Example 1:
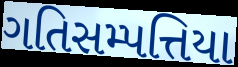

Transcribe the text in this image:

ગતિસમ્પત્તિયા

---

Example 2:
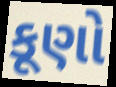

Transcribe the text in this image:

કૂણો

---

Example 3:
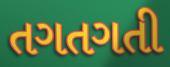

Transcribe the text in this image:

તગતગતી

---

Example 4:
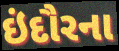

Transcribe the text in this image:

ઇંદૌરના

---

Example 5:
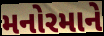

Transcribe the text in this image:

મનોરમાને